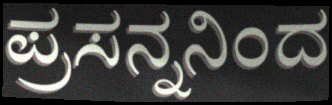
ಪ್ರಸನ್ನನಿಂದ